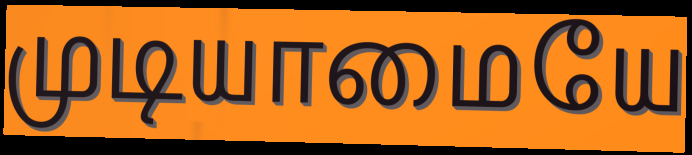
முடியாமையே